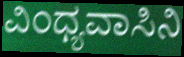
ವಿಂಧ್ಯವಾಸಿನಿ